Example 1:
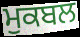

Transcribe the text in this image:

ਮੁਕਬਲ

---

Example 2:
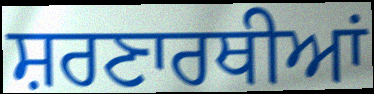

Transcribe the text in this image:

ਸ਼ਰਣਾਰਥੀਆਂ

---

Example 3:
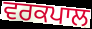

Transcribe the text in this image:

ਵਰਕਪਾਲ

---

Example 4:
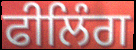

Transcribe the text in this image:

ਫੀਲਿੰਗ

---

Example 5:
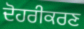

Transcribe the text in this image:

ਦੋਹਰੀਕਰਣ